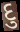
દુ